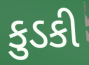
કુડકી